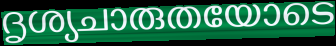
ദൃശ്യചാരുതയോടെ